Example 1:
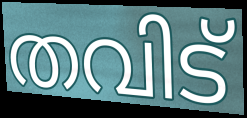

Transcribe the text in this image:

തവിട്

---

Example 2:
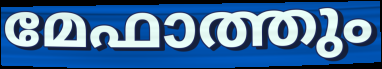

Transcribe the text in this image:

മേഫാത്തും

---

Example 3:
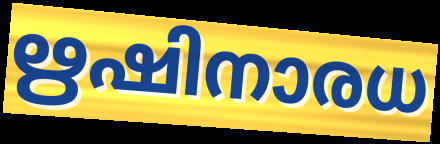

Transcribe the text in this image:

ഋഷിനാരധ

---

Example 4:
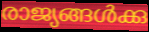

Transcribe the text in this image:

രാജ്യങ്ങൾക്കു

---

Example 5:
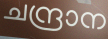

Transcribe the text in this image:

ചന്ദ്രാന